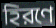
হিরণে